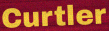
Curtler